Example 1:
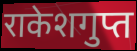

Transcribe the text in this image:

राकेशगुप्त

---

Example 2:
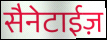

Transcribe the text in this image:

सैनेटाईज़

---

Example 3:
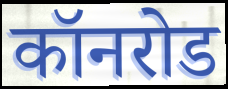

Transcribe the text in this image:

कॉनरोड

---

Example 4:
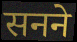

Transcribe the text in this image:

सनने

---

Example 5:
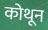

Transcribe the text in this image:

कोथून